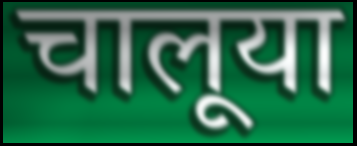
चालूया